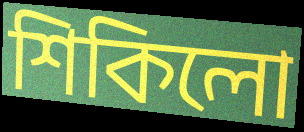
শিকিলো